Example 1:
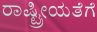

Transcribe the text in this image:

ರಾಷ್ಟ್ರೀಯತೆಗೆ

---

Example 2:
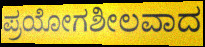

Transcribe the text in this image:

ಪ್ರಯೋಗಶೀಲವಾದ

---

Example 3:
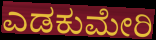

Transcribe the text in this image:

ಎಡಕುಮೇರಿ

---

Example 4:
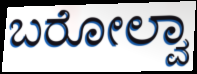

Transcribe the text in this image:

ಬರೋಲ್ವಾ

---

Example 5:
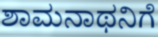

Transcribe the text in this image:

ಶಾಮನಾಥನಿಗೆ